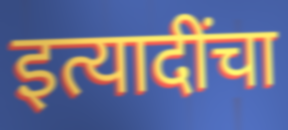
इत्यादींचा